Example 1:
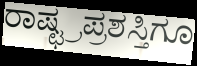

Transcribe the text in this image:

ರಾಷ್ಟ್ರಪ್ರಶಸ್ತಿಗೂ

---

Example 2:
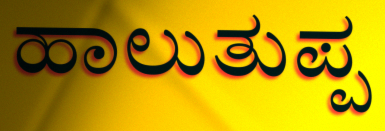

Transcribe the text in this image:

ಹಾಲುತುಪ್ಪ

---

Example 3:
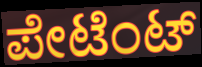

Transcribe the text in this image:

ಪೇಟೆಂಟ್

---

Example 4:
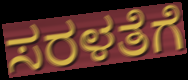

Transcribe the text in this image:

ಸರಳತೆಗೆ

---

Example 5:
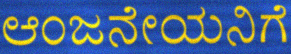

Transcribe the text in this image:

ಆಂಜನೇಯನಿಗೆ